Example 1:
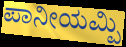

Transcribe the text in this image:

ಪಾನೀಯಮ್ಪಿ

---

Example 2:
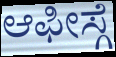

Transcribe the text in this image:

ಆಫೀಸ್ಗೆ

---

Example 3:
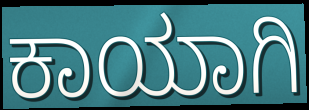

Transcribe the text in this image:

ಕಾಯಾಗಿ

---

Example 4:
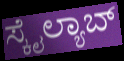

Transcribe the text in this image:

ಸ್ಕೈಲ್ಯಾಬ್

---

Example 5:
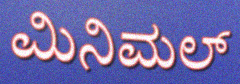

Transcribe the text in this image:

ಮಿನಿಮಲ್